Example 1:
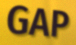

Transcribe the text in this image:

GAP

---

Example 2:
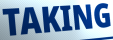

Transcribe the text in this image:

TAKING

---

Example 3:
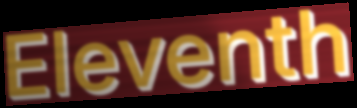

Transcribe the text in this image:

Eleventh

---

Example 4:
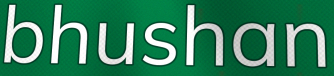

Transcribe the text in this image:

bhushan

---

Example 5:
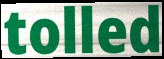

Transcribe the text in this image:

tolled